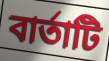
বার্তাটি